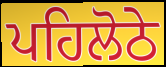
ਪਹਿਲੋਠੇ